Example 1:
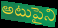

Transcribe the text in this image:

అటుపైని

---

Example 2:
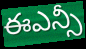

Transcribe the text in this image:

ఈఎన్సీ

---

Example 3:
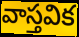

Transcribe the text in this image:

వాస్తవిక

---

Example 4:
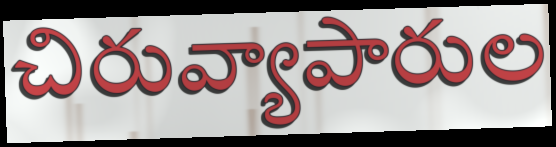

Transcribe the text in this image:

చిరువ్యాపారుల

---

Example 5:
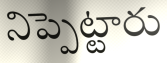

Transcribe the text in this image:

నిప్పెట్టారు